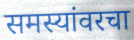
समस्यांवरचा